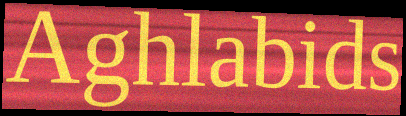
Aghlabids